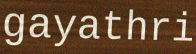
gayathri